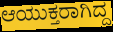
ಆಯುಕ್ತರಾಗಿದ್ದ